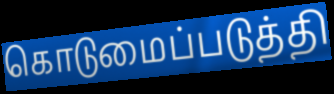
கொடுமைப்படுத்தி